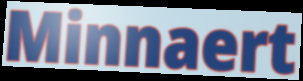
Minnaert